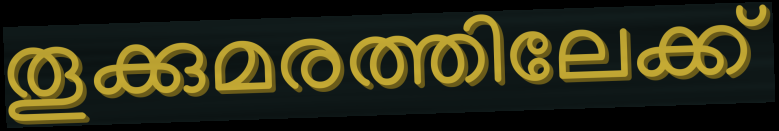
തൂക്കുമരത്തിലേക്ക്